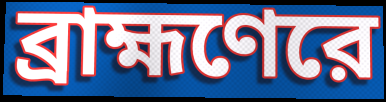
ব্রাহ্মণেরে